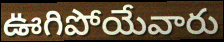
ఊగిపోయేవారు